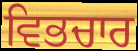
ਵਿਭਚਾਰ